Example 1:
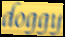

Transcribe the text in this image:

doggy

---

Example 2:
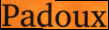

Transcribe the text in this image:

Padoux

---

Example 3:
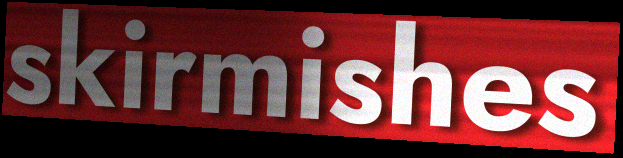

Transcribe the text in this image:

skirmishes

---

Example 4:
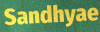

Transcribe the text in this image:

Sandhyae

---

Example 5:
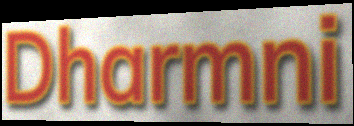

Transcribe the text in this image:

Dharmni